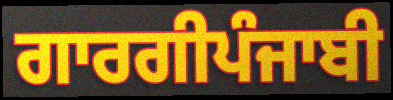
ਗਾਰਗੀਪੰਜਾਬੀ